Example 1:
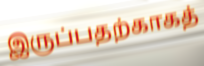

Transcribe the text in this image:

இருப்பதற்காகத்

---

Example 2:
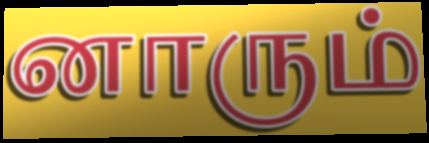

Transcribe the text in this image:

னாரும்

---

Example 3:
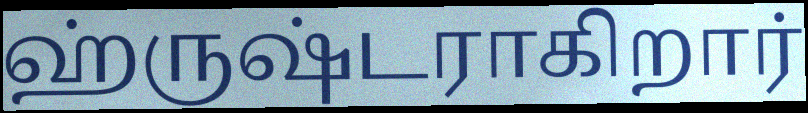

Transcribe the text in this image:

ஹ்ருஷ்டராகிறார்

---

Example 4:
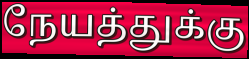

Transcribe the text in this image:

நேயத்துக்கு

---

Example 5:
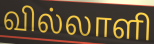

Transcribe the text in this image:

வில்லாளி